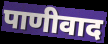
पाणीवाद